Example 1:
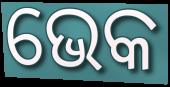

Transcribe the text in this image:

ଭେକ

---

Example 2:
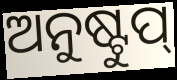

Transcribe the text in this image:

ଅନୁଷ୍ଟୁପ୍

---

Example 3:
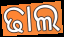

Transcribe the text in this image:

ଢାଲ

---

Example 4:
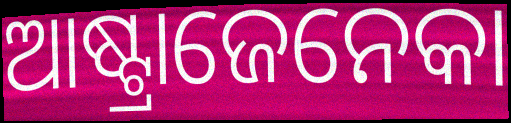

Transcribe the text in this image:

ଆଷ୍ଟ୍ରାଜେନେକା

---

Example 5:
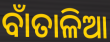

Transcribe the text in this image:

ବାଁତାଳିଆ